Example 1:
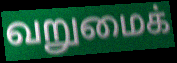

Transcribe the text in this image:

வறுமைக்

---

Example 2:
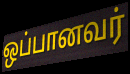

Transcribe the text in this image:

ஒப்பானவர்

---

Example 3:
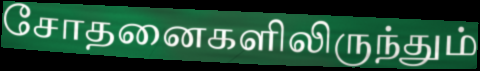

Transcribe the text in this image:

சோதனைகளிலிருந்தும்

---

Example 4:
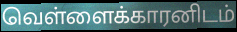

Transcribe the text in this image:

வெள்ளைக்காரனிடம்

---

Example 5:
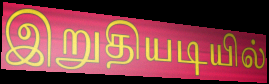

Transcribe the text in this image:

இறுதியடியில்